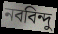
নববিন্দু